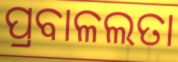
ପ୍ରବାଳଲତା